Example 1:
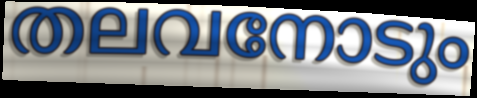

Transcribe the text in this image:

തലവനോടും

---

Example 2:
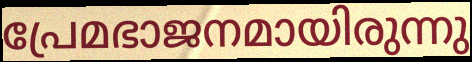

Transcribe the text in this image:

പ്രേമഭാജനമായിരുന്നു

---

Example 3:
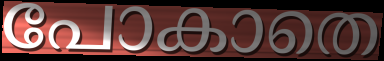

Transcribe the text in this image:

പോകാതെ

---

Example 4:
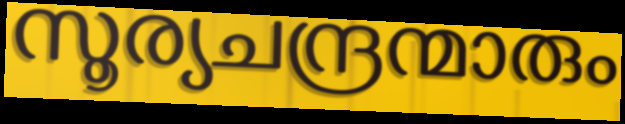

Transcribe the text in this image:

സൂര്യചന്ദ്രന്മാരും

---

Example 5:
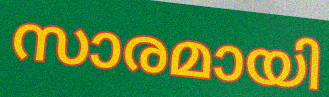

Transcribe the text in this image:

സാരമായി